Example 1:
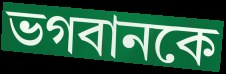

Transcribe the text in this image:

ভগবানকে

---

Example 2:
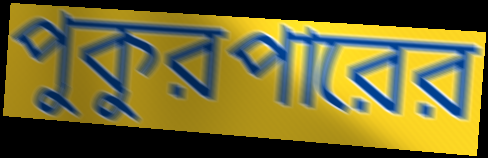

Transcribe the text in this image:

পুকুরপারের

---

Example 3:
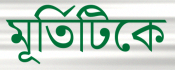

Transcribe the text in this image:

মূর্তিটিকে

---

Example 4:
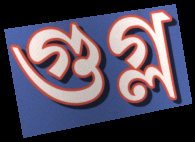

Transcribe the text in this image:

গুগ্ল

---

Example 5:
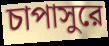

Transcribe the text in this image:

চাপাসুরে